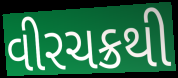
વીરચક્રથી